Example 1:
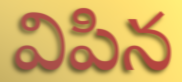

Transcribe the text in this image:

విపిన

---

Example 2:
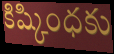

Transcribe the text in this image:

కిష్కింధకు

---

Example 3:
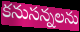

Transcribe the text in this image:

కనుసన్నలను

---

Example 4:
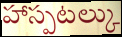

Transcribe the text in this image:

హాస్పటల్కు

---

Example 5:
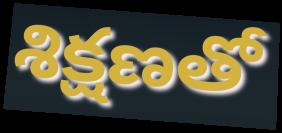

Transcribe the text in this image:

శిక్షణతో